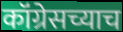
कॉंग्रेसच्याच